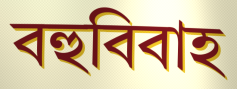
বহুবিবাহ